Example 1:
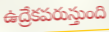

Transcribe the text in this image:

ఉద్రేకపరుస్తుంది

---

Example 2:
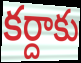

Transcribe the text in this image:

కర్దాకు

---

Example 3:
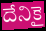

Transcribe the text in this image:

దేనికై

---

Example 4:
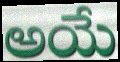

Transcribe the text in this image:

అయే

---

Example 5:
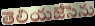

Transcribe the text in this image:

తెలియజేసెను